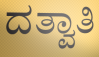
ದತ್ವಾತಿ